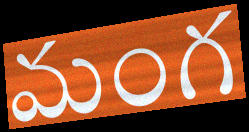
మంగ